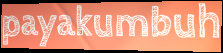
payakumbuh